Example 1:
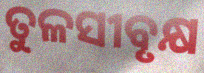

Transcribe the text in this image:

ତୁଳସୀବୃକ୍ଷ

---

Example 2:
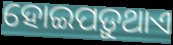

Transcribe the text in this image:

ହୋଇପଡ଼ୁଥାଏ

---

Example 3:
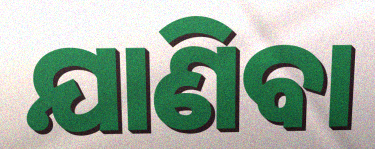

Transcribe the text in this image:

ଯାଣିବା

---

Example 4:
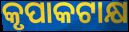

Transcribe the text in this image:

କୃପାକଟାକ୍ଷ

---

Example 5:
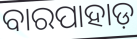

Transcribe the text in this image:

ବାରପାହାଡ଼